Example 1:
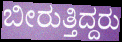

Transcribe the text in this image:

ಬೀರುತ್ತಿದ್ದರು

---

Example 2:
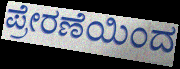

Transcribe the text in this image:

ಪ್ರೇರಣೆಯಿಂದ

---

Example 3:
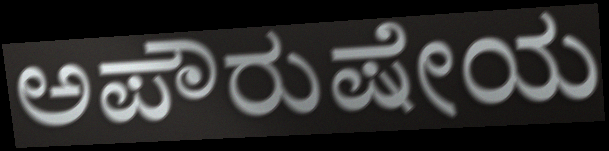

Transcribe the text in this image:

ಅಪೌರುಷೇಯ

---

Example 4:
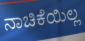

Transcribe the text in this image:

ನಾಚಿಕೆಯಿಲ್ಲ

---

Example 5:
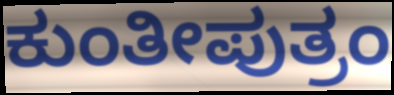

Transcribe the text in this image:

ಕುಂತೀಪುತ್ರಂ